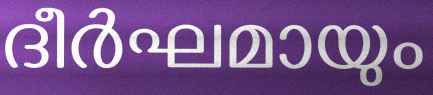
ദീർഘമായും